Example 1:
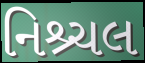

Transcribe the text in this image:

નિશ્ર્ચલ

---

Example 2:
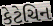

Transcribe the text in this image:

કેટેચિન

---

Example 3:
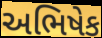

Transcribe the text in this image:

અભિષેક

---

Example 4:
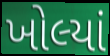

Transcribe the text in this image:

ખોલ્યાં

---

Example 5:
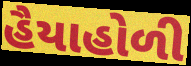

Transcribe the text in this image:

હૈયાહોળી